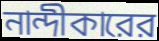
নান্দীকারের